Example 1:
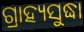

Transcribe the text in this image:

ଗ୍ରାହ୍ୟସୁଦ୍ଧା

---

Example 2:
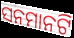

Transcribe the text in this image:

ସନମାନଟି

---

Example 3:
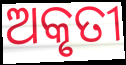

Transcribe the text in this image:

ଅକୃତୀ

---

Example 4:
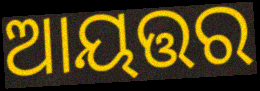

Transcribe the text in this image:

ଆୟତ୍ତର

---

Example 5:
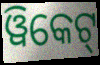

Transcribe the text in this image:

ୱିକେଟ୍